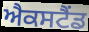
ਐਕਸਟੈਂਡ